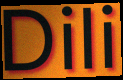
Dili